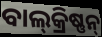
ବାଲ୍‍କ୍ରିଷ୍ଣନ୍